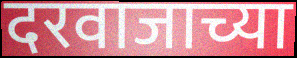
दरवाजाच्या